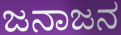
ಜನಾಜನ